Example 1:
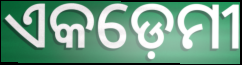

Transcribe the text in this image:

ଏକଡ଼େମୀ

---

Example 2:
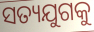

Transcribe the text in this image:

ସତ୍ୟଯୁଗକୁ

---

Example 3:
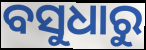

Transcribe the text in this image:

ବସୁଧାରୁ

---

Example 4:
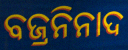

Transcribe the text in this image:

ବଜ୍ରନିନାଦ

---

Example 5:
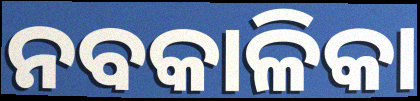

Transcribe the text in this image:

ନବକାଳିକା